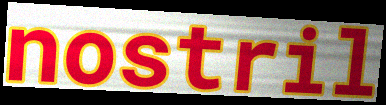
nostril